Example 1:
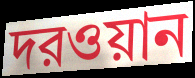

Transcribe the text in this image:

দরওয়ান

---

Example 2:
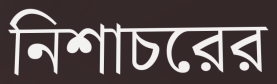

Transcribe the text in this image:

নিশাচরের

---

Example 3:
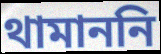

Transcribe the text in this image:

থামাননি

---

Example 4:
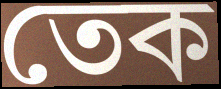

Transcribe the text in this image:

তেক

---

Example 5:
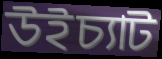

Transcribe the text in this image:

উইচ্যাট